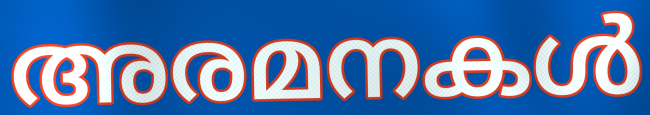
അരമനകൾ